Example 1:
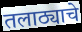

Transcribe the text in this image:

तलाठ्याचे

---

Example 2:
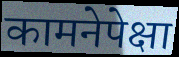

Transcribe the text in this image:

कामनेपेक्षा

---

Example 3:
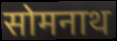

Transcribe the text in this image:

सोमनाथ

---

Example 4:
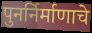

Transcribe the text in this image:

पुनर्निर्माणाचे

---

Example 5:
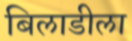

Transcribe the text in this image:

बिलाडीला